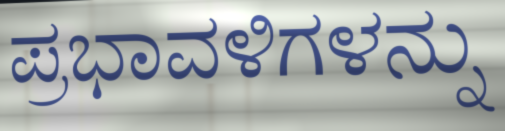
ಪ್ರಭಾವಳಿಗಳನ್ನು